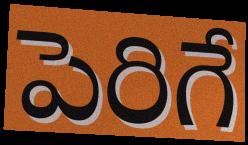
పెరిగే